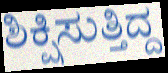
ಶಿಕ್ಷಿಸುತ್ತಿದ್ದ